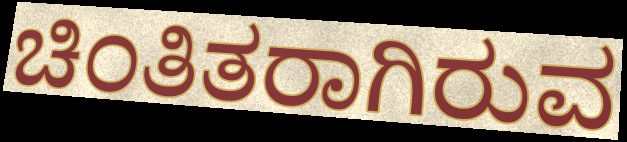
ಚಿಂತಿತರಾಗಿರುವ